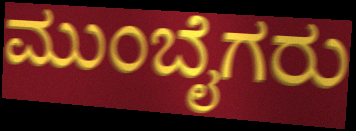
ಮುಂಬೈಗರು